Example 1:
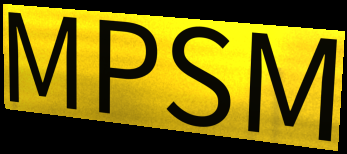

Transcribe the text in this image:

MPSM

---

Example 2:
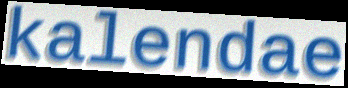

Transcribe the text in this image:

kalendae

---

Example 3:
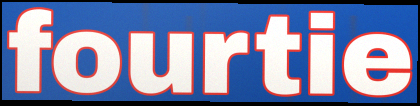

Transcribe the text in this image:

fourtie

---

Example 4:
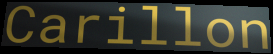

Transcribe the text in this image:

Carillon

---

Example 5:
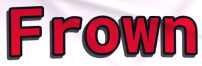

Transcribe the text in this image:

Frown